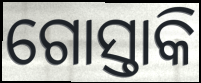
ଗୋସ୍ତାକି